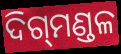
ଦିଗ୍‌ମଣ୍ଡଳ